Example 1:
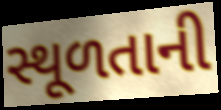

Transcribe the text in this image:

સ્થૂળતાની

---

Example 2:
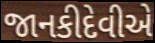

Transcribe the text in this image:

જાનકીદેવીએ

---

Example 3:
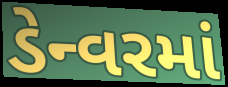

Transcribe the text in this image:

ડેન્વરમાં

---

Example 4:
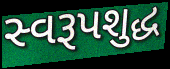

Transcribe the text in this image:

સ્વરૂપશુદ્ધ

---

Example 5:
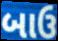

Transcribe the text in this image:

બાઉ